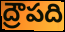
ద్రౌపది